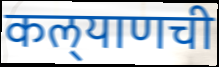
कल्याणची